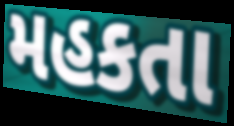
મહકતા